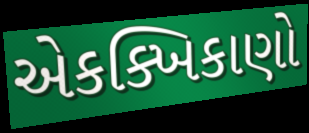
એકક્ખિકાણો